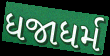
ધજાધર્મ